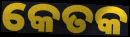
କେତକ